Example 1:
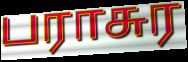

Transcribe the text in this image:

பராசுர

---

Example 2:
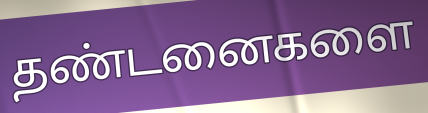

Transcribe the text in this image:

தண்டனைகளை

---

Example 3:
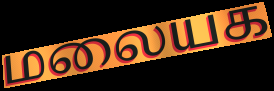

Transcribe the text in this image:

மலையக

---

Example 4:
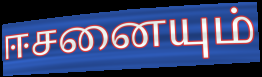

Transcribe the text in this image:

ஈசனையும்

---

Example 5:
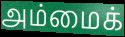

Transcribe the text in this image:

அம்மைக்